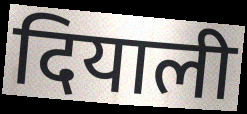
दियाली